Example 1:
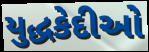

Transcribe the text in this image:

યુદ્ધકેદીઓ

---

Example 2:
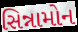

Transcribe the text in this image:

સિન્નામોન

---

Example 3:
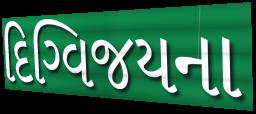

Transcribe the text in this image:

દિગ્વિજયના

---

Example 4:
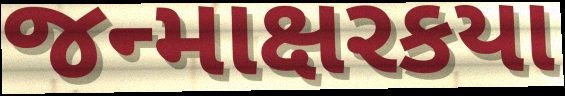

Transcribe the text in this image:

જન્માક્ષરકયા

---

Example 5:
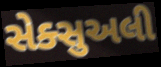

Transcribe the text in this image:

સેક્સુઅલી